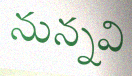
నున్నవి